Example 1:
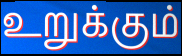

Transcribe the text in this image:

உறுக்கும்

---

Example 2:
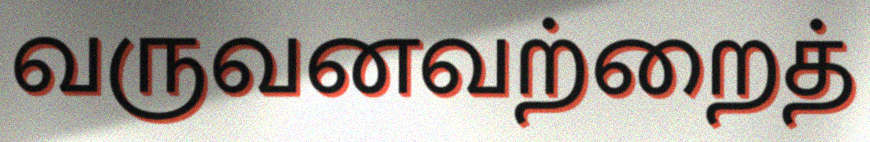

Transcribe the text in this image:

வருவனவற்றைத்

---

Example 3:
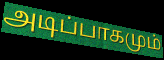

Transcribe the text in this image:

அடிப்பாகமும்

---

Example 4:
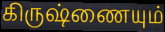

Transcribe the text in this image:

கிருஷ்ணையும்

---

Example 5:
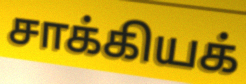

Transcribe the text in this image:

சாக்கியக்